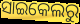
ସାଇକେଲରୁ